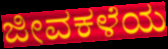
ಜೀವಕಳೆಯ